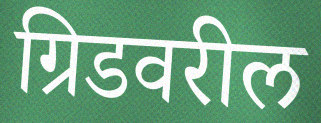
ग्रिडवरील